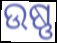
ଉଷ୍ଣ